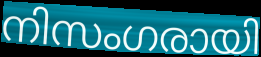
നിസംഗരായി